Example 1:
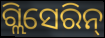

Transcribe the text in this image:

ଗ୍ଲିସେରିନ୍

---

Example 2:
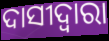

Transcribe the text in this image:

ଦାସୀଦ୍ୱାରା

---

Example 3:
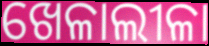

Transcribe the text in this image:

ଖେଳାଲୀଳା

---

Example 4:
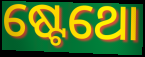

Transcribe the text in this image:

ଷ୍ଟେଥୋ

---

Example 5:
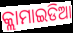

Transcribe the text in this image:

କ୍ଲାମାଇଡିଆ